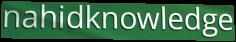
nahidknowledge